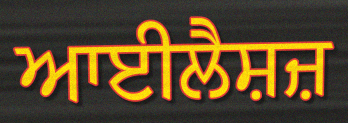
ਆਈਲੈਸ਼ਜ਼